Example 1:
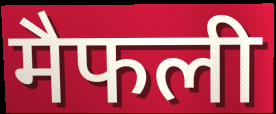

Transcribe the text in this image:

मैफली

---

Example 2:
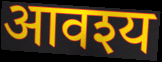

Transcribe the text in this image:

आवश्य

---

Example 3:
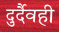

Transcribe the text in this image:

दुर्दैवही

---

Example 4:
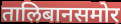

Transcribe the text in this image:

तालिबानसमोर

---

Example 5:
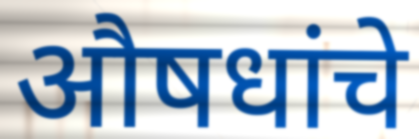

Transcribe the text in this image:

औषधांचे